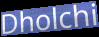
Dholchi